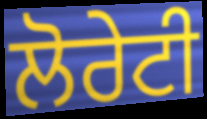
ਲੋਰੇਟੀ